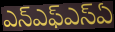
ఎన్ఎఫ్ఎస్ఏ